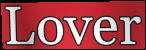
Lover